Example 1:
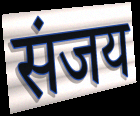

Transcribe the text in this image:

संजय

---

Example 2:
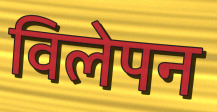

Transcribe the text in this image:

विलेपन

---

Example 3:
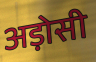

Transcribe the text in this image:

अड़ोसी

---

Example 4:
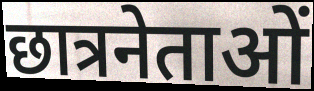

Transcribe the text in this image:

छात्रनेताओं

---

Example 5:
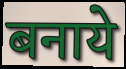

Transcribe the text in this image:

बनाये